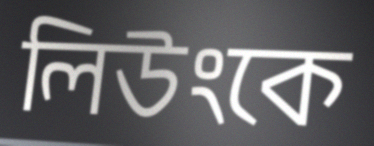
লিউংকে